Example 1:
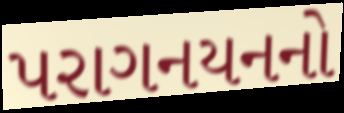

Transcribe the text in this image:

પરાગનયનનો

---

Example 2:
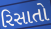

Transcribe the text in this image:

રિસાતો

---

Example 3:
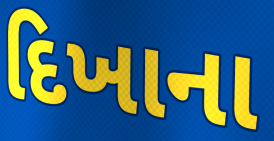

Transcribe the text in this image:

દિખાના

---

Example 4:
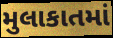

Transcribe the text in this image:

મુલાકાતમાં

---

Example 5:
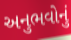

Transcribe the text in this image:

અનુભવોનું